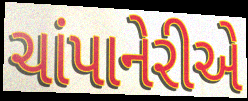
ચાંપાનેરીએ